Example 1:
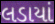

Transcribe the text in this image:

લડાયાં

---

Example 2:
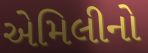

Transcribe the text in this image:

એમિલીનો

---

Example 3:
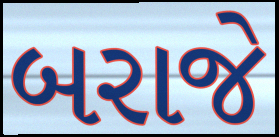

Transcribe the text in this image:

બરાજે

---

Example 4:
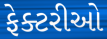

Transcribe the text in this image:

ફેક્ટરીઓ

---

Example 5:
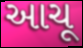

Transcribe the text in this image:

આચૂ